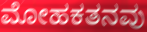
ಮೋಹಕತನವು